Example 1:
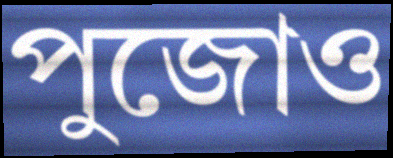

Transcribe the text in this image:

পুজোও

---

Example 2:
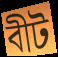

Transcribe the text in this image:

বীট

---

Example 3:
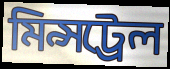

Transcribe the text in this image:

মিন্সট্রেল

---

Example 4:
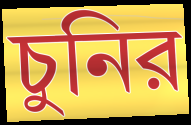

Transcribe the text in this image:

চুনির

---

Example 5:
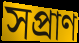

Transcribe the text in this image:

সপ্রাণ